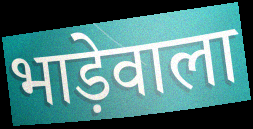
भाड़ेवाला